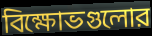
বিক্ষোভগুলোর